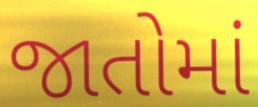
જાતોમાં